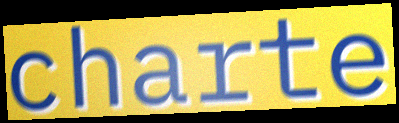
charte